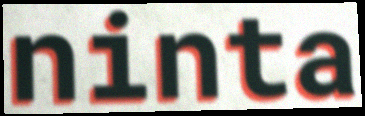
ninta